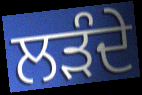
ਲੜੰਦੇ